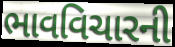
ભાવવિચારની